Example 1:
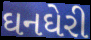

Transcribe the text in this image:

ઘનઘેરી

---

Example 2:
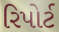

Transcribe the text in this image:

રિપોર્ટ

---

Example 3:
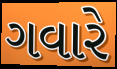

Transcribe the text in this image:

ગવારે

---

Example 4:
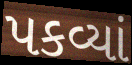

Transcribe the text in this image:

પકવ્યાં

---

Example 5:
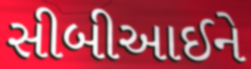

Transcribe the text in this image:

સીબીઆઈને